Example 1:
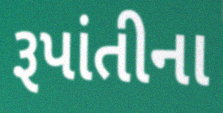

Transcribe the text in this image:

રૂપાંતીના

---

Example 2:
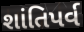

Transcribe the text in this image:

શાંતિપર્વ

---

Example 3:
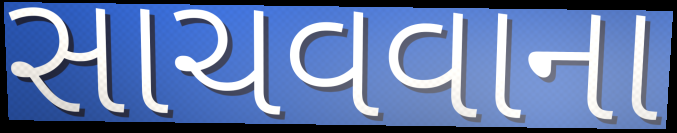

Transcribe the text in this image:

સાચવવાના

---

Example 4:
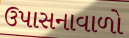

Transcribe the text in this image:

ઉપાસનાવાળો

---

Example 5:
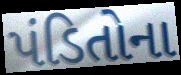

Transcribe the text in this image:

પંડિતોના